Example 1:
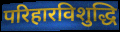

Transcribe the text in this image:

परिहारविशुद्धि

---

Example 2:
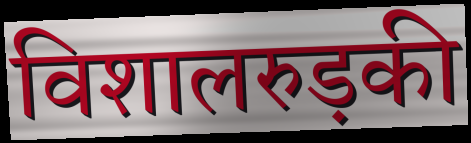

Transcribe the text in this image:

विशालरुड़की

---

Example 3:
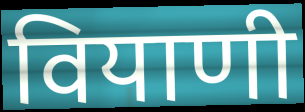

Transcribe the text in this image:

वियाणी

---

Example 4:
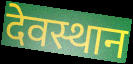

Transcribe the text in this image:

देवस्थान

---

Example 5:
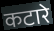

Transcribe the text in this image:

कटारे